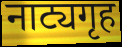
नाट्यगृह